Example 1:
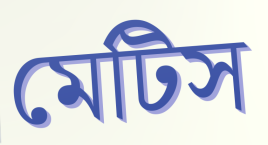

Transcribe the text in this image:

মেটিস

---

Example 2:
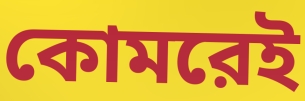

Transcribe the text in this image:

কোমরেই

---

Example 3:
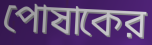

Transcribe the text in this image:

পোষাকের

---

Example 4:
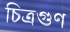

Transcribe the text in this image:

চিত্রগুণ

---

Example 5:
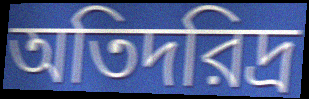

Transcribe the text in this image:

অতিদরিদ্র